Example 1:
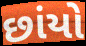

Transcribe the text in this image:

છાંયો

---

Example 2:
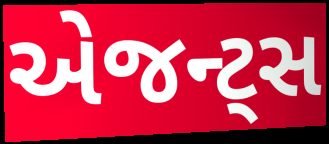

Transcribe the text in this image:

એજન્ટ્સ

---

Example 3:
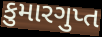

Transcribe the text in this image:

કુમારગુપ્ત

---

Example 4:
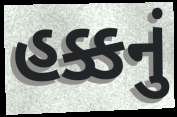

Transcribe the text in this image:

હક્કનું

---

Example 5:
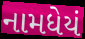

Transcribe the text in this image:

નામધેયં